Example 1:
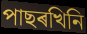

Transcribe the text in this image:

পাছৰখিনি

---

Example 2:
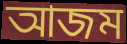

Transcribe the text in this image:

আজম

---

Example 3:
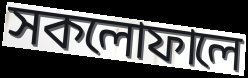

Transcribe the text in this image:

সকলোফালে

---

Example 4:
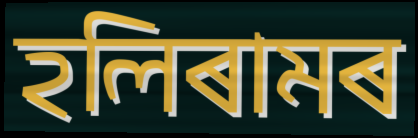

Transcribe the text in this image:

হলিৰামৰ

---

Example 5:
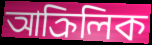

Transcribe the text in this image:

আক্ৰিলিক